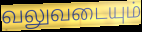
வலுவடையும்